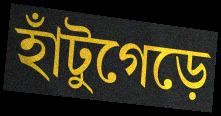
হাঁটুগেড়ে